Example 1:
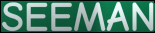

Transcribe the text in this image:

SEEMAN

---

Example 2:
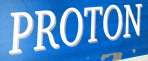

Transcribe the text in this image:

PROTON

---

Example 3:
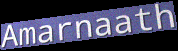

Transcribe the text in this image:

Amarnaath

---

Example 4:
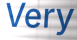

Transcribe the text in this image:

Very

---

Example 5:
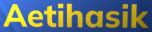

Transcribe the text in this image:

Aetihasik